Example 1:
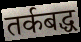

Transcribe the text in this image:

तर्कबद्ध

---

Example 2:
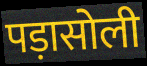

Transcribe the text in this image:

पड़ासोली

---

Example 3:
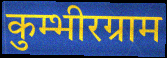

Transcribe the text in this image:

कुम्भीरग्राम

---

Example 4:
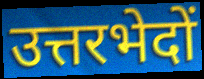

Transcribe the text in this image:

उत्तरभेदों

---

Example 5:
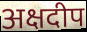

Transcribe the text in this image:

अक्षदीप